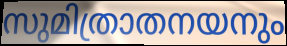
സുമിത്രാതനയനും